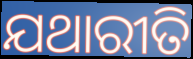
ଯଥାରୀତି